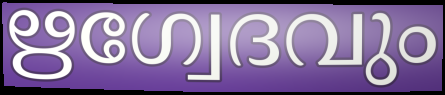
ഋഗ്വേദവും